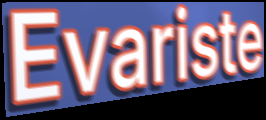
Evariste